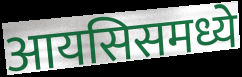
आयसिसमध्ये